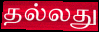
தல்லது